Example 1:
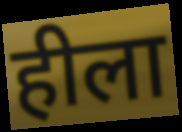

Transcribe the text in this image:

हीला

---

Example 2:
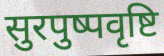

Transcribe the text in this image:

सुरपुष्पवृष्टि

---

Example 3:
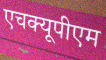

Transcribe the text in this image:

एचक्यूपीएम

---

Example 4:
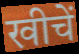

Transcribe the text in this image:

खीचें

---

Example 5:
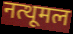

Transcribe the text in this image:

नत्थूमल